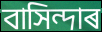
বাসিন্দাৰ